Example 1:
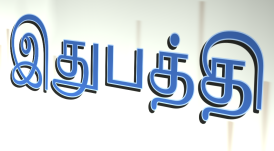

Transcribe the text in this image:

இதுபத்தி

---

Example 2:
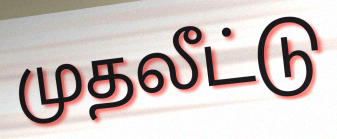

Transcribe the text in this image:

முதலீட்டு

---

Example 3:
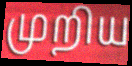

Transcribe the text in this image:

முறிய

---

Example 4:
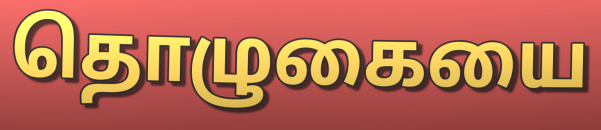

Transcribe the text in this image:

தொழுகையை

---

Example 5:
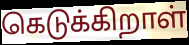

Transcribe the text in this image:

கெடுக்கிறாள்